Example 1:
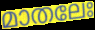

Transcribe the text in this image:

മാതലേഃ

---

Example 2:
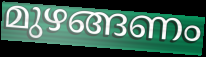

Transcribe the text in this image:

മുഴങ്ങണം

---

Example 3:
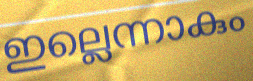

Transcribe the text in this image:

ഇല്ലെന്നാകും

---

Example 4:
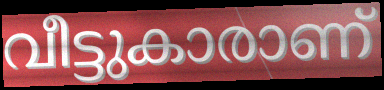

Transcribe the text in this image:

വീട്ടുകാരാണ്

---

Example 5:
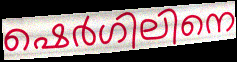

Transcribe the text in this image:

ഷെർഗിലിനെ